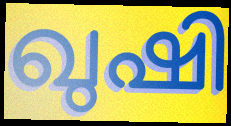
ഖുഷി